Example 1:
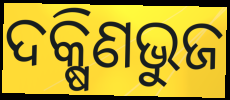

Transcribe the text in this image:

ଦକ୍ଷିଣଭୁଜ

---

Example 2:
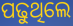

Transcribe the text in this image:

ପଢୁଥିଲେ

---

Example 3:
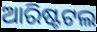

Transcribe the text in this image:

ଆରିଷ୍ଟଟଲ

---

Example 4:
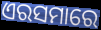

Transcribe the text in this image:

ଏରସମାରେ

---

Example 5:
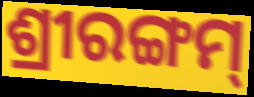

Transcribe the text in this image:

ଶ୍ରୀରଙ୍ଗମ୍